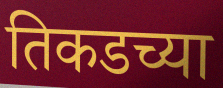
तिकडच्या